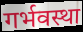
गर्भवस्था